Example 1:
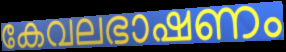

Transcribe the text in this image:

കേവലഭാഷണം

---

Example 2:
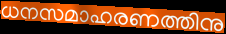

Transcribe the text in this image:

ധനസമാഹരണത്തിനു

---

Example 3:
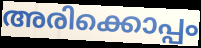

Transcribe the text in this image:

അരിക്കൊപ്പം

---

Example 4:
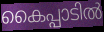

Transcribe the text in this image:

കൈപ്പാടിൽ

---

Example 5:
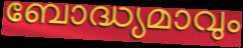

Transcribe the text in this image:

ബോദ്ധ്യമാവും